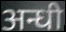
अन्धी